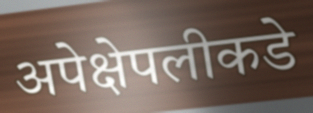
अपेक्षेपलीकडे